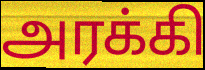
அரக்கி